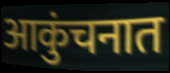
आकुंचनात